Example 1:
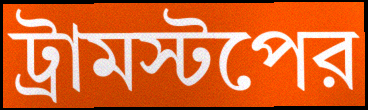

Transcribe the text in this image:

ট্রামস্টপের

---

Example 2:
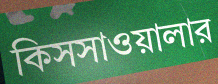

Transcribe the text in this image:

কিসসাওয়ালার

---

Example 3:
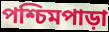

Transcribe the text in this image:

পশ্চিমপাড়া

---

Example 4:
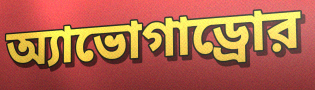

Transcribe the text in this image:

অ্যাভোগাড্রোর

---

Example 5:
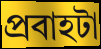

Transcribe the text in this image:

প্রবাহটা